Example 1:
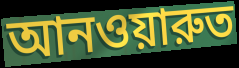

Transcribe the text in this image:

আনওয়ারুত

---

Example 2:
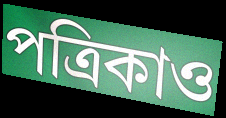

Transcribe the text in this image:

পত্রিকাও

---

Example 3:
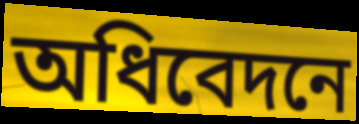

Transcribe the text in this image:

অধিবেদনে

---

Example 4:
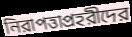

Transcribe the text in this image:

নিরাপত্তাপ্রহরীদের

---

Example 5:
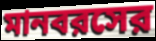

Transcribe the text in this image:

মানবরসের